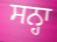
ਸਨ੍ਹਾ